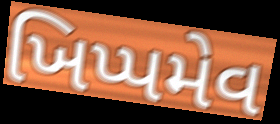
ખિપ્પમેવ